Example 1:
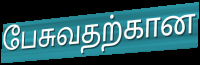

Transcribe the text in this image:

பேசுவதற்கான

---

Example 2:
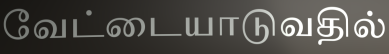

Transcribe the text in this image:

வேட்டையாடுவதில்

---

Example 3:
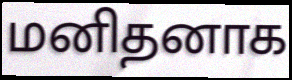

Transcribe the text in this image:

மனிதனாக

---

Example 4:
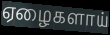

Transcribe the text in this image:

ஏழைகளாய்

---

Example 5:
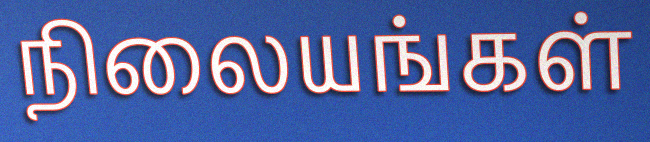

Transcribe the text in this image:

நிலையங்கள்